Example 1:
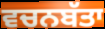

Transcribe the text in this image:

ਵਚਨਬੱਤਾ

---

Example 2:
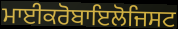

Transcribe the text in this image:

ਮਾਈਕਰੋਬਾਇਲੋਜਿਸਟ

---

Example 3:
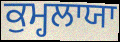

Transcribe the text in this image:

ਕੁਮ੍ਹਲਾਯਾ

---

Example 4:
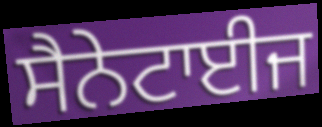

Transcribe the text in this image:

ਸੈਨੇਟਾਈਜ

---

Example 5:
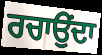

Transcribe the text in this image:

ਰਚਾਉਂਦਾ